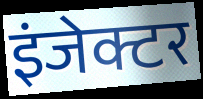
इंजेक्टर